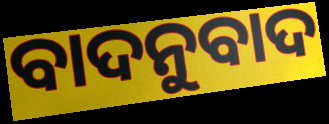
ବାଦନୁବାଦ